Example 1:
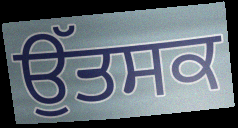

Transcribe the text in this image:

ਉੱਤਸਕ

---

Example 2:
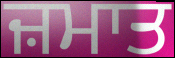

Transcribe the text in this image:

ਜ਼ਮਾਤ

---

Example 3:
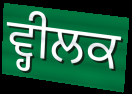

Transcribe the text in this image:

ਵ੍ਹੀਲਕ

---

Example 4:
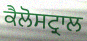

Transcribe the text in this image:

ਕੈਲੋਸਟ੍ਰਾਲ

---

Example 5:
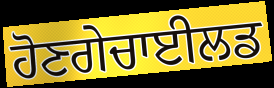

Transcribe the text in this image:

ਹੋਣਗੇਚਾਈਲਡ